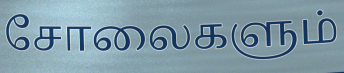
சோலைகளும்